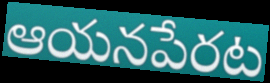
ఆయనపేరట